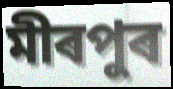
মীৰপুৰ